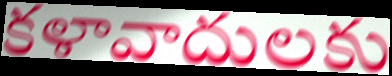
కళావాదులకు